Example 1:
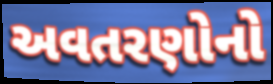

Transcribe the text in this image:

અવતરણોનો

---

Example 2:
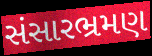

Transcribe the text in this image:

સંસારભ્રમણ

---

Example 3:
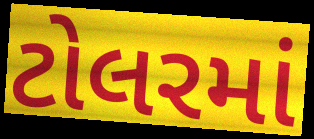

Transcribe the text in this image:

ટોલરમાં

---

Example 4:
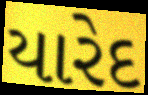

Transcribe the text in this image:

યારેદ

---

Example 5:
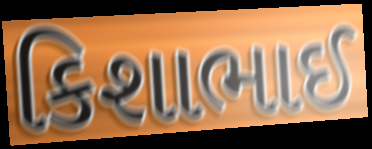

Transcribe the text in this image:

કિશાભાઈ